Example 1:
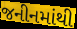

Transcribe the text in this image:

જનીનમાંથી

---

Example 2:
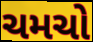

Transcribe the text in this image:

ચમચો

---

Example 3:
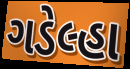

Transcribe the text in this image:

ગડેલ્હા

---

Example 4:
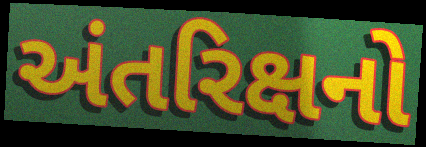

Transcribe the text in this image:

અંતરિક્ષનો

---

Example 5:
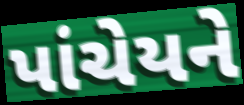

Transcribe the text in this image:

પાંચેયને